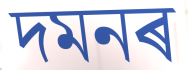
দমনৰ